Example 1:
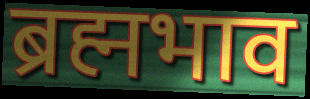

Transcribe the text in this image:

ब्रह्मभाव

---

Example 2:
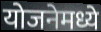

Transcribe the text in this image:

योजनेमध्ये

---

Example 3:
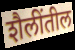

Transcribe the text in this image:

शैलींतील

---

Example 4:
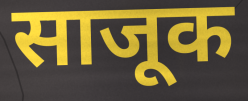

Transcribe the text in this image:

साजूक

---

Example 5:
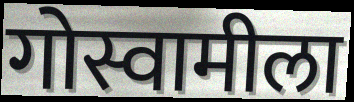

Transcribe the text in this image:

गोस्वामीला